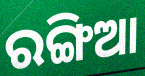
ରଙ୍ଗିଆ